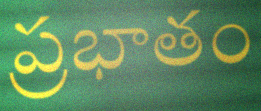
ప్రభాతం